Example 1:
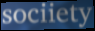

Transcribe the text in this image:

sociiety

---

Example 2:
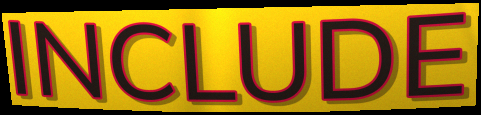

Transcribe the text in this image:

INCLUDE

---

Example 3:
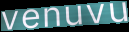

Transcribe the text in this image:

venuvu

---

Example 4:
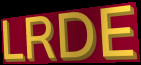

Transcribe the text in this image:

LRDE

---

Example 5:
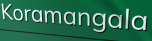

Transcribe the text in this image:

Koramangala